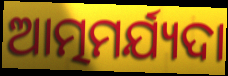
ଆତ୍ମମର୍ଯ୍ୟଦା